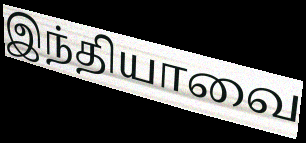
இந்தியாவை